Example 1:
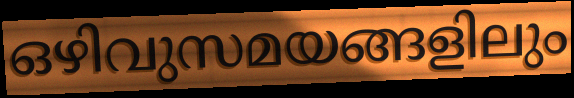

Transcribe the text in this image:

ഒഴിവുസമയങ്ങളിലും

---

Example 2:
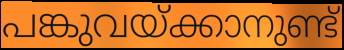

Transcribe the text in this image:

പങ്കുവയ്ക്കാനുണ്ട്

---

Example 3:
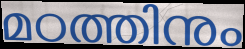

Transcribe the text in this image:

മഠത്തിനും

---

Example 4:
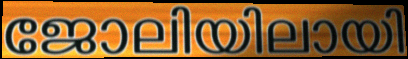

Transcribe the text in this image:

ജോലിയിലായി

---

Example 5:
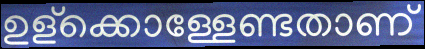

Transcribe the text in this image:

ഉള്ക്കൊള്ളേണ്ടതാണ്